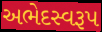
અભેદસ્વરૂપ